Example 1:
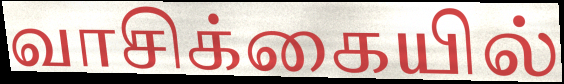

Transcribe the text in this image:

வாசிக்கையில்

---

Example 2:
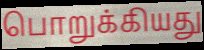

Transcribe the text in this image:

பொறுக்கியது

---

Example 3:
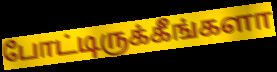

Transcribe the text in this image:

போட்டிருக்கீங்களா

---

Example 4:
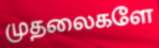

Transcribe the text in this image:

முதலைகளே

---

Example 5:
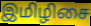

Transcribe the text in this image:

இமிழிசை